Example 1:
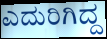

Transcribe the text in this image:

ಎದುರಿಗಿದ್ದ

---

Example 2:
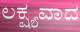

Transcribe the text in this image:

ಲಕ್ಷ್ಯವಾದ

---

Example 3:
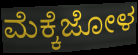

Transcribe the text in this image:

ಮೆಕ್ಕೆಜೋಳ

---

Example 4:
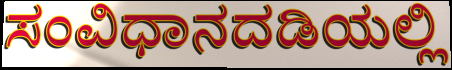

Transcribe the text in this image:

ಸಂವಿಧಾನದಡಿಯಲ್ಲಿ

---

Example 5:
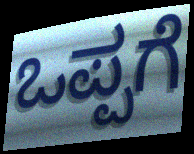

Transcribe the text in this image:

ಒಪ್ಪಗೆ